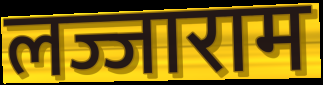
लज्जाराम